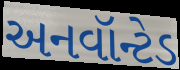
અનવૉન્ટેડ